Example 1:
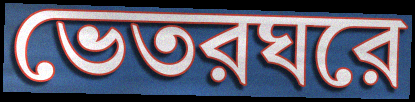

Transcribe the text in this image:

ভেতরঘরে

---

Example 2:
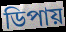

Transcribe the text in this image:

ডিপায়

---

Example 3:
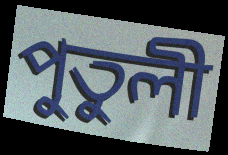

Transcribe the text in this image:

পুতুলী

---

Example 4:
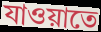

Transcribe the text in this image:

যাওয়াতে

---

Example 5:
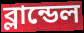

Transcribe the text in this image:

ব্লান্ডেল